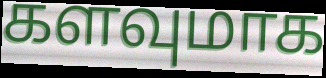
களவுமாக